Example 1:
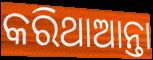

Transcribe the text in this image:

କରିଥାଆନ୍ତା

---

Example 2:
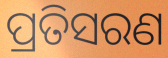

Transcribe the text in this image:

ପ୍ରତିସରଣ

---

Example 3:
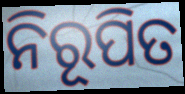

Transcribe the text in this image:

ନିରୂପିତ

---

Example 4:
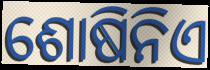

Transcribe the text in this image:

ଶୋଷିନିଏ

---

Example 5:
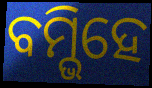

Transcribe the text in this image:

ବମ୍ଭିହେ